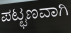
ಪಟ್ಟಣವಾಗಿ